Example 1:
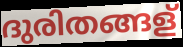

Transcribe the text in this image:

ദുരിതങ്ങള്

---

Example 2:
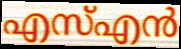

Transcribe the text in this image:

എസ്എൻ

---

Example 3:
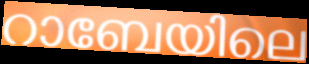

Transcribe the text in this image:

റാബേയിലെ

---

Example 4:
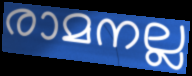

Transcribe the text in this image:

രാമനല്ല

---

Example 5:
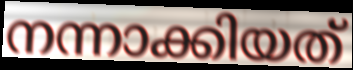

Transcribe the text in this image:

നന്നാക്കിയത്